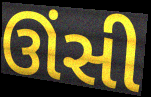
ઊંસી